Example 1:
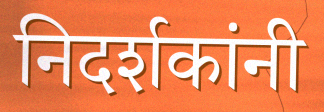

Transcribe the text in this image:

निदर्शकांनी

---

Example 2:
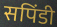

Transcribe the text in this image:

सपिंडी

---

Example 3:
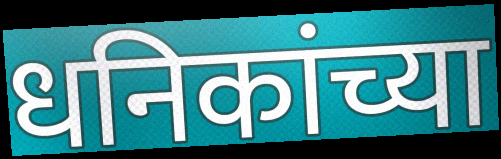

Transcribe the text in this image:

धनिकांच्या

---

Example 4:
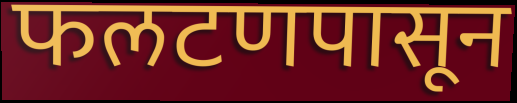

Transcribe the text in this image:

फलटणपासून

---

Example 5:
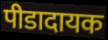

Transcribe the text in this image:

पीडादायक